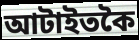
আটাইতকৈ